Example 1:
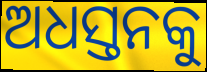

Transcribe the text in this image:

ଅଧସ୍ତନକୁ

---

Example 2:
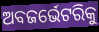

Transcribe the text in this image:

ଅବଜର୍ଭେଟରିକୁ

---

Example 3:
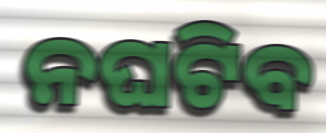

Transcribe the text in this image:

ନଘଟିବ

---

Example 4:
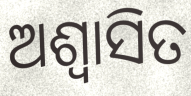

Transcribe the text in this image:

ଅଶ୍ୱାସିତ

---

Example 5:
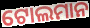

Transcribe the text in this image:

ଟୋଲମାନ